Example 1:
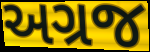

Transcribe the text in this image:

અગ્રજ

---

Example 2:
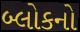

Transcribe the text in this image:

બ્લોકનો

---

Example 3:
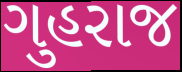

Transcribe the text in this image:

ગુહરાજ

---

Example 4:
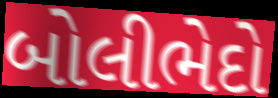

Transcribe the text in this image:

બોલીભેદો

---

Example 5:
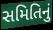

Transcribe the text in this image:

સમિતિનું